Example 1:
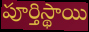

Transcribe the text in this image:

పూర్తిస్థాయి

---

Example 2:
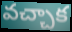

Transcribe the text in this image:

వచ్చాక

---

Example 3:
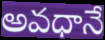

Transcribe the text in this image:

అవధానే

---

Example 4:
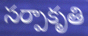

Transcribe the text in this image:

సర్పాకృతి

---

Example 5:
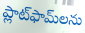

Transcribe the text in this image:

ప్లాట్‌ఫామ్‌లను